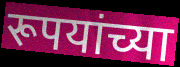
रूपयांच्या